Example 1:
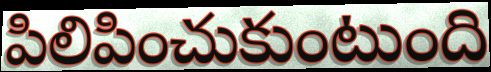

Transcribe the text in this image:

పిలిపించుకుంటుంది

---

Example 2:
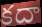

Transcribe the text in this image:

కదా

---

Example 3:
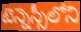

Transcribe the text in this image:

టెన్నెస్సీలోని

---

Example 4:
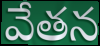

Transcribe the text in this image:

వేతన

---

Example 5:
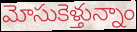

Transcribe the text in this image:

మోసుకెళ్తున్నాం